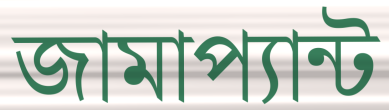
জামাপ্যান্ট